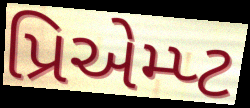
પ્રિએમ્પ્ટ